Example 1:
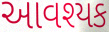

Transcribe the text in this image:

આવશ્યક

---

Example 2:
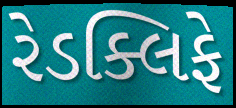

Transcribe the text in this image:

રેડક્લિફે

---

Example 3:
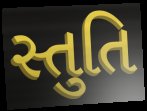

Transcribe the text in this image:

સ્તુતિ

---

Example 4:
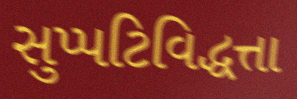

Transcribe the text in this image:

સુપ્પટિવિદ્ધત્તા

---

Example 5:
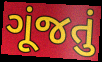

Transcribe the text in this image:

ગૂંજતું